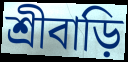
শ্রীবাড়ি